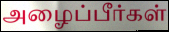
அழைப்பீர்கள்